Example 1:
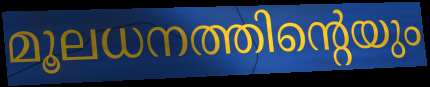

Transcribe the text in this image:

മൂലധനത്തിന്റെയും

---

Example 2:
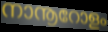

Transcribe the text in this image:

നാനൂറോളം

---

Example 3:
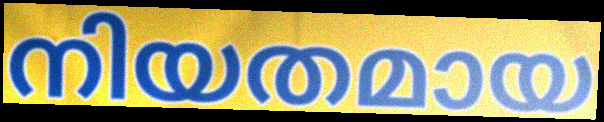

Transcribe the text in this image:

നിയതമായ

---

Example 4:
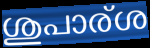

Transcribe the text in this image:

ശുപാര്ശ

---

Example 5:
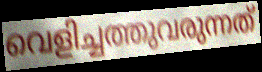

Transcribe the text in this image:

വെളിച്ചത്തുവരുന്നത്